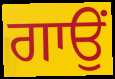
ਗਾਉਂ